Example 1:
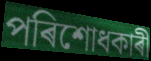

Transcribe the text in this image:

পৰিশোধকাৰী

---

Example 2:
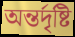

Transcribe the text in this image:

অন্তৰ্দৃষ্টি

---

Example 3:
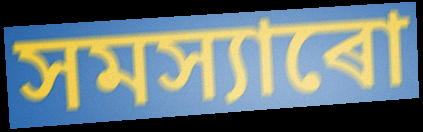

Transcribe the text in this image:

সমস্যাৰো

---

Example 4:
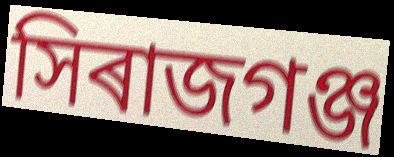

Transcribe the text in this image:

সিৰাজগঞ্জ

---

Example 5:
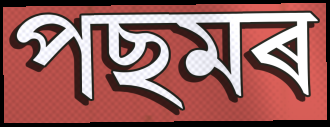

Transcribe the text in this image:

পছমৰ